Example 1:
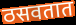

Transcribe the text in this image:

ठसवतात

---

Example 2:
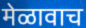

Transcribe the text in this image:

मेळावाच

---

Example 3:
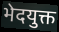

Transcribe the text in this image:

भेदयुक्त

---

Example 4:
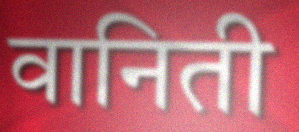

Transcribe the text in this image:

वानिती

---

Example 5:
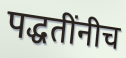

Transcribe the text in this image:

पद्धतींनीच